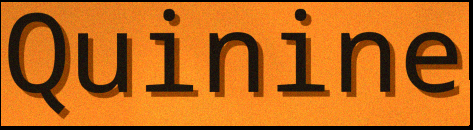
Quinine